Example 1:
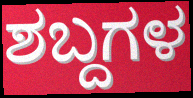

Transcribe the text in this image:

ಶಬ್ದಗಳ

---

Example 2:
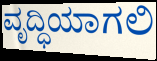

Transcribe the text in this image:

ವೃದ್ಧಿಯಾಗಲಿ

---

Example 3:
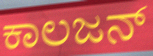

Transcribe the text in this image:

ಕಾಲಜನ್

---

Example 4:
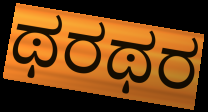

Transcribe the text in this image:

ಥರಥರ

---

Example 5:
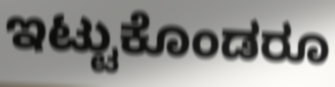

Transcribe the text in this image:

ಇಟ್ಟುಕೊಂಡರೂ